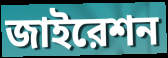
জাইরেশন